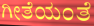
ಗೀತೆಯಂತೆ